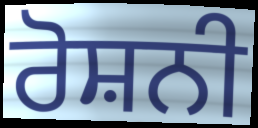
ਰੋਸ਼ਨੀ